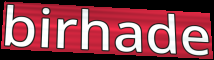
birhade